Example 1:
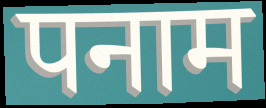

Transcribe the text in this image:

पनाम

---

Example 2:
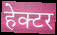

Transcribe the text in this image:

हेक्टर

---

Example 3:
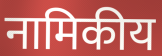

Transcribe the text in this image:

नामिकीय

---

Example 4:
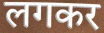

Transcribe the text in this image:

लगकर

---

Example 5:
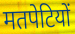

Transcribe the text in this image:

मतपेटियों